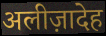
अलीज़ादेह